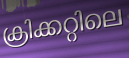
ക്രിക്കറ്റിലെ